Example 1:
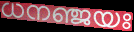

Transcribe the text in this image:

ധനഞ്ജയഃ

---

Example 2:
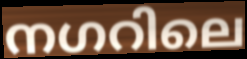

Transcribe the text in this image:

നഗറിലെ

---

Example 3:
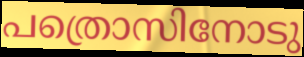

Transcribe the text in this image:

പത്രൊസിനോടു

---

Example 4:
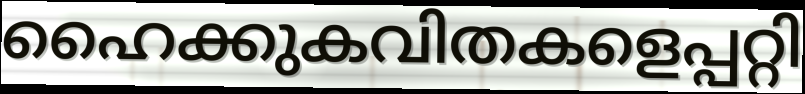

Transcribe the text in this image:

ഹൈക്കുകവിതകളെപ്പറ്റി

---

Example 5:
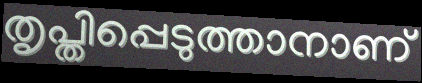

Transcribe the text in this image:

തൃപ്തിപ്പെടുത്താനാണ്